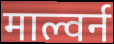
माल्वर्न